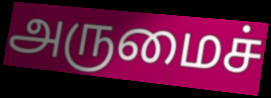
அருமைச்